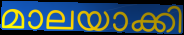
മാലയാക്കി